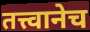
तत्त्वानेच